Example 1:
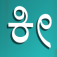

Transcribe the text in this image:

ಕೀ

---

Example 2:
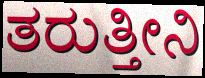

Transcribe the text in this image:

ತರುತ್ತೀನಿ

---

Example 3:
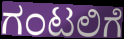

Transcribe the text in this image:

ಗಂಟಲಿಗೆ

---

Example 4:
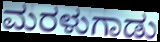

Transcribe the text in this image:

ಮರಳುಗಾಡು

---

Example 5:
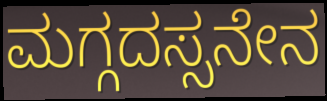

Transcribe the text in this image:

ಮಗ್ಗದಸ್ಸನೇನ